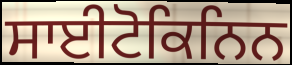
ਸਾਈਟੋਕਿਨਿਨ